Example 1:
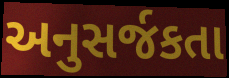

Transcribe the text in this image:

અનુસર્જકતા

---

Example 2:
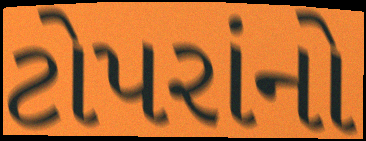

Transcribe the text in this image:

ટોપરાંનો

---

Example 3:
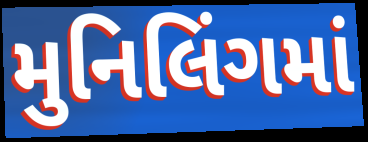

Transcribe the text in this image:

મુનિલિંગમાં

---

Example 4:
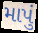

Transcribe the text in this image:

માપું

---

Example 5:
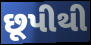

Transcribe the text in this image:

છૂપીથી